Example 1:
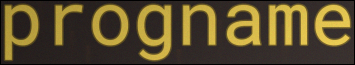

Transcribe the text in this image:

progname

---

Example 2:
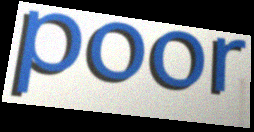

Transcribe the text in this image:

poor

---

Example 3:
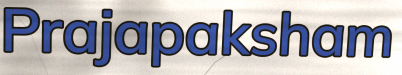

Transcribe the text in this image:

Prajapaksham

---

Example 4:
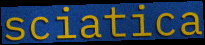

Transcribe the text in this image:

sciatica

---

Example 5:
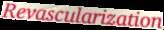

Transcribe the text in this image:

Revascularization